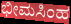
ಭೀಮಸಿಂಹ